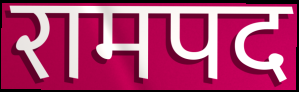
रामपद